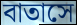
বাতাসে